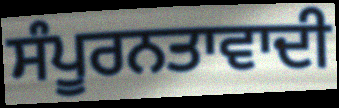
ਸੰਪੂਰਨਤਾਵਾਦੀ